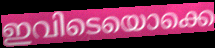
ഇവിടെയൊക്കെ